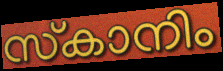
സ്‌കാനിം